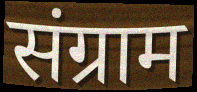
संग्राम